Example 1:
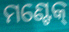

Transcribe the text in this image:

ମଣ୍ଟେକ୍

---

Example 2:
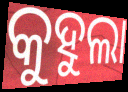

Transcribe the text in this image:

କୁହୁଲା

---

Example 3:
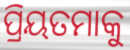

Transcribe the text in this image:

ପ୍ରିୟତମାକୁ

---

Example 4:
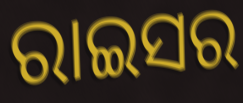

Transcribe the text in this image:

ରାଇସର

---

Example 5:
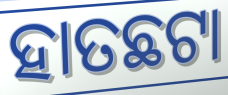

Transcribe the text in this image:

ହାତଛଟା